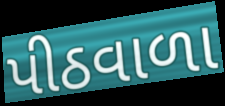
પીઠવાળા